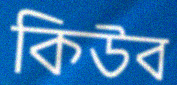
কিউব